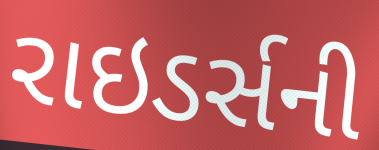
રાઇડર્સની